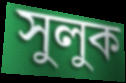
সুলুক